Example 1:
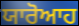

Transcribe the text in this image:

ਯਾਰੋਆਹ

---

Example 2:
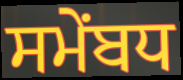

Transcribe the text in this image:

ਸਮੇਂਬਧ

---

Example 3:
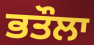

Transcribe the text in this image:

ਭਤੌਲਾ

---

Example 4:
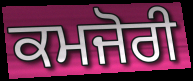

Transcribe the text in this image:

ਕਮਜੋਰੀ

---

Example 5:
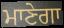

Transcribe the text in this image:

ਮਾਣੇਗਾ